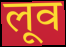
लूव